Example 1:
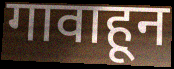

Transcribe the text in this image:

गावाहून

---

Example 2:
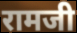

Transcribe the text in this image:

रामजी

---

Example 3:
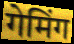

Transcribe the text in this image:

गेमिंग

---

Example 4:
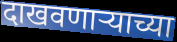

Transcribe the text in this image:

दाखवणाऱ्याच्या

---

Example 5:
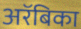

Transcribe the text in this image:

अरॅबिका